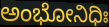
ಅಂಭೋನಿಧಿಃ